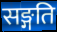
सङ्गति